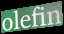
olefin